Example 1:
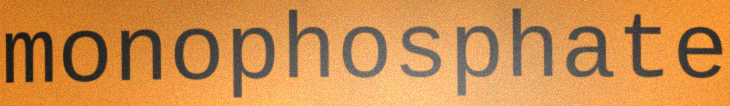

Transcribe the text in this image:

monophosphate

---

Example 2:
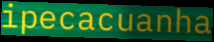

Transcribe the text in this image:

ipecacuanha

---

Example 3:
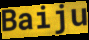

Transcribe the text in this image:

Baiju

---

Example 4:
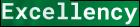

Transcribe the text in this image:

Excellency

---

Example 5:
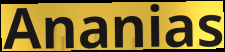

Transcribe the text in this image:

Ananias